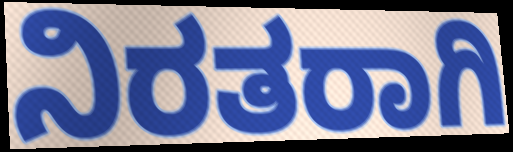
ನಿರತರಾಗಿ